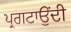
ਪ੍ਰਗਟਾਉਂਦੀ